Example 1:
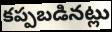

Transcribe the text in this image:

కప్పబడినట్లు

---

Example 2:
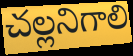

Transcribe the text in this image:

చల్లనిగాలి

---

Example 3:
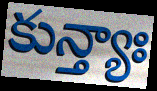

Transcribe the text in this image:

కున్త్యాః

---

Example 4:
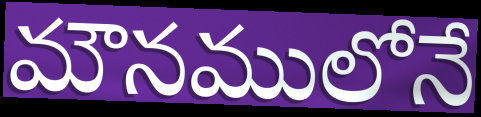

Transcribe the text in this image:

మౌనములోనే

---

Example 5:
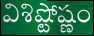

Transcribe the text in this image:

విశిష్టోష్ణం